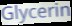
Glycerin